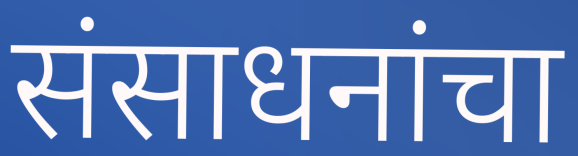
संसाधनांचा